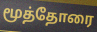
மூத்தோரை